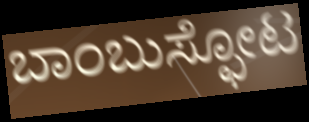
ಬಾಂಬುಸ್ಫೋಟ